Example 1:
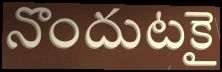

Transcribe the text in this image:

నొందుటకై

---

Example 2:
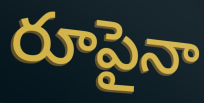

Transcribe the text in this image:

రూపైనా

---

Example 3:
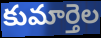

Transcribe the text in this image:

కుమార్తెల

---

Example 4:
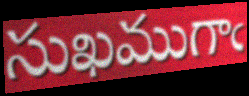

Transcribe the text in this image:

సుఖముగాఁ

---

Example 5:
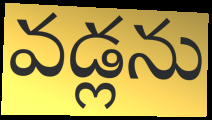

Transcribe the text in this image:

వడ్లను